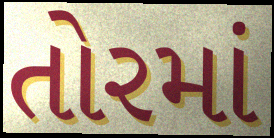
તોરમાં